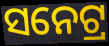
ସନେଟ୍ର